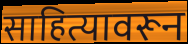
साहित्यावरून